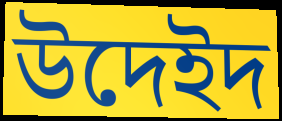
উদেইদ